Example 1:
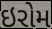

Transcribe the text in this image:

ઇરોમ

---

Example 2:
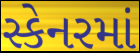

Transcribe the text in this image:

સ્કેનરમાં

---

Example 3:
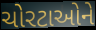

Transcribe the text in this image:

ચોરટાઓને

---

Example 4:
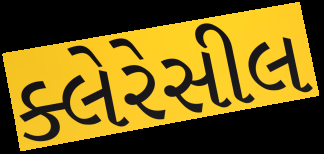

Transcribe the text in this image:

ક્લેરેસીલ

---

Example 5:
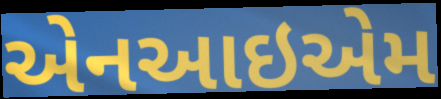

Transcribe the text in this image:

એનઆઇએમ